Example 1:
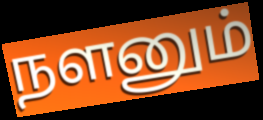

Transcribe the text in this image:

நளனும்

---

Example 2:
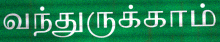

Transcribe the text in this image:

வந்துருக்காம்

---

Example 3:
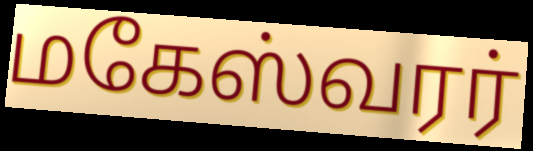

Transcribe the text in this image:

மகேஸ்வரர்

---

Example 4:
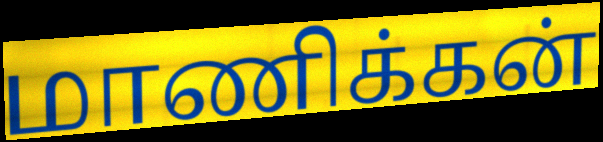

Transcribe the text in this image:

மாணிக்கன்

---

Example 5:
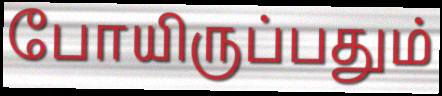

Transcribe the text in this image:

போயிருப்பதும்